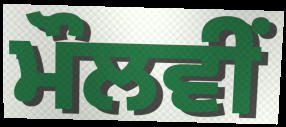
ਮੌਲਵੀਂ